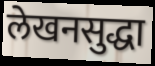
लेखनसुद्धा